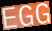
EGG